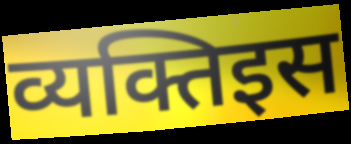
व्यक्तिइस